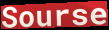
Sourse